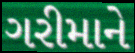
ગરીમાને